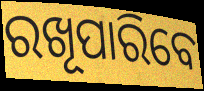
ରଖୂପାରିବେ